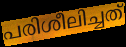
പരിശീലിച്ചത്